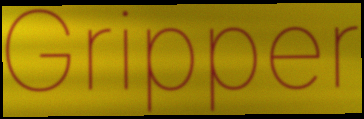
Gripper